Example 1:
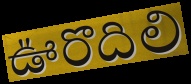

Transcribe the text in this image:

ఊరొదిలి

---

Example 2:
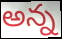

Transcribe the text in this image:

అన్న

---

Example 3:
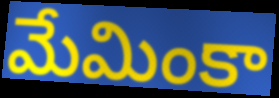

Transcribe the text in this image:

మేమింకా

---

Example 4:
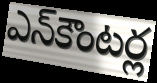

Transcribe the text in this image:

ఎన్‌కౌంటర్ల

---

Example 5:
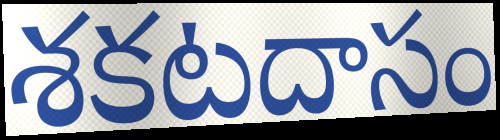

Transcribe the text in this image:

శకటదాసం